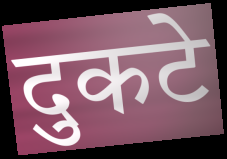
दुकटे